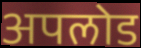
अपलोड